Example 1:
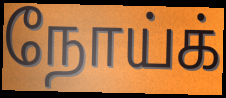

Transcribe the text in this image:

நோய்க்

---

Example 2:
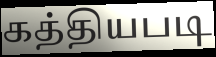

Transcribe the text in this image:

கத்தியபடி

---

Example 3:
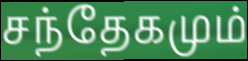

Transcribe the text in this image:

சந்தேகமும்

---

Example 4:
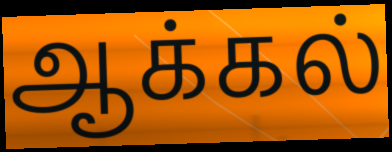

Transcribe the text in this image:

ஆக்கல்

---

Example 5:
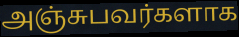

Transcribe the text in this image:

அஞ்சுபவர்களாக